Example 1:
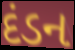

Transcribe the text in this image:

દંડન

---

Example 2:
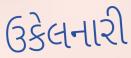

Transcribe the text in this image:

ઉકેલનારી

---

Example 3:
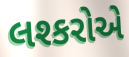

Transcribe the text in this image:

લશ્કરોએ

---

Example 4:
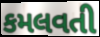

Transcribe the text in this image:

કમલવતી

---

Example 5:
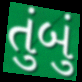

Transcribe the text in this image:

તુંબું